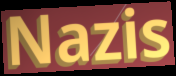
Nazis